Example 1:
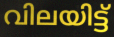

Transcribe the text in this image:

വിലയിട്ട്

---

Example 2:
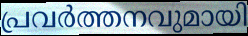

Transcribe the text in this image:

പ്രവർത്തനവുമായി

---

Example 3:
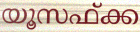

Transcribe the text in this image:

യൂസഫ്ക്ക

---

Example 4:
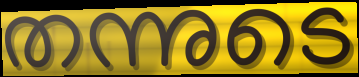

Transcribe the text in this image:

തന്നുടെ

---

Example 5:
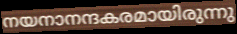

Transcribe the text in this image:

നയനാനന്ദകരമായിരുന്നു